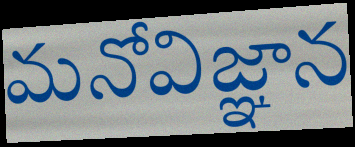
మనోవిజ్ఞాన